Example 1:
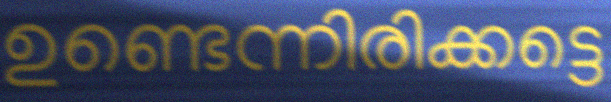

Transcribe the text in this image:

ഉണ്ടെന്നിരിക്കട്ടെ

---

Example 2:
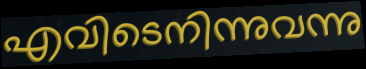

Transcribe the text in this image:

എവിടെനിന്നുവന്നു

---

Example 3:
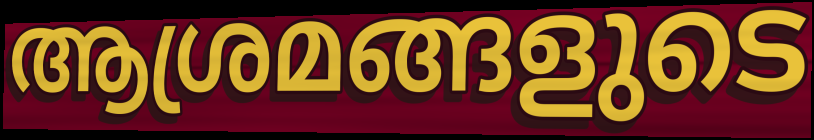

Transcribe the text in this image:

ആശ്രമങ്ങളുടെ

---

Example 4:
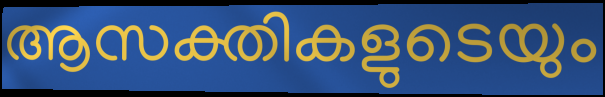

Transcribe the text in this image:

ആസക്തികളുടെയും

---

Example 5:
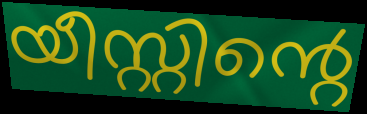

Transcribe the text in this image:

യീസ്റ്റിന്റെ